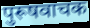
पुरूषवाचक